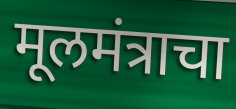
मूलमंत्राचा